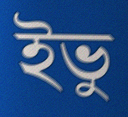
ইভু